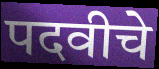
पदवीचे